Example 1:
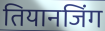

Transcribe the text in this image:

तियानजिंग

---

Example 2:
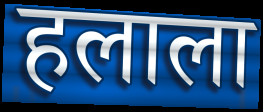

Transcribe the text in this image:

हलाला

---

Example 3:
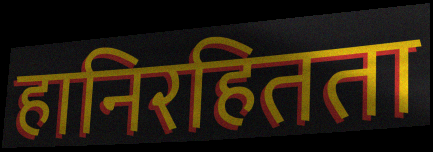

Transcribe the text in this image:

हानिरहितता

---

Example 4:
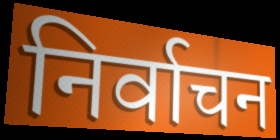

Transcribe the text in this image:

निर्वाचन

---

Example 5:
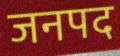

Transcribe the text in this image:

जनपद